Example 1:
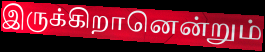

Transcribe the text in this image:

இருக்கிறானென்றும்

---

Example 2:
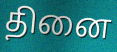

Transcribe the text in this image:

தினை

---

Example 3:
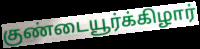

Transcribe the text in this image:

குண்டையூர்க்கிழார்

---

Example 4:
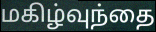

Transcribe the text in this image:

மகிழ்வுந்தை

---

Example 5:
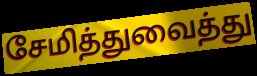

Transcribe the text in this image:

சேமித்துவைத்து